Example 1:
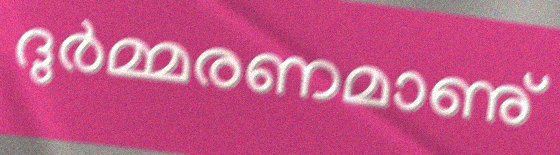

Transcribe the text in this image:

ദുർമ്മരണമാണു്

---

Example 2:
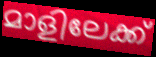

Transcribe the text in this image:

മാളിലേക്ക്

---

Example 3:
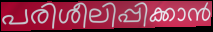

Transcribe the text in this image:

പരിശീലിപ്പിക്കാൻ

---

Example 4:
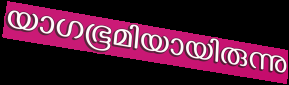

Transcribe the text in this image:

യാഗഭൂമിയായിരുന്നു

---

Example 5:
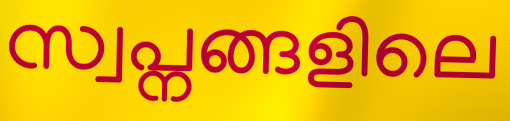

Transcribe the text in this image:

സ്വപ്നങ്ങളിലെ